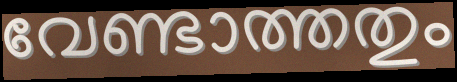
വേണ്ടാത്തതും